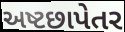
અષ્ટછાપેતર